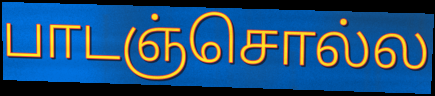
பாடஞ்சொல்ல